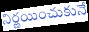
నిర్ణయించుకునే